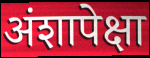
अंशापेक्षा